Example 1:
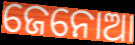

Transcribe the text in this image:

ଜେନୋଆ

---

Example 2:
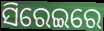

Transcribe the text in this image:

ସିରେଇରେ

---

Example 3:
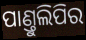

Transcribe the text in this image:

ପାଣ୍ତୁଲିପିର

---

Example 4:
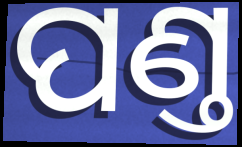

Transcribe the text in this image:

ପଣ୍ତ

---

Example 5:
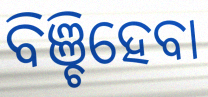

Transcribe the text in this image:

ବିଞ୍ଚିହେବା